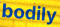
bodily